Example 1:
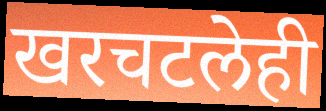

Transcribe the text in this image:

खरचटलेही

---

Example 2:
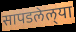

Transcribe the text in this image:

सापडलेल्या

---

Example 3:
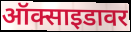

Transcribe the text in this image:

ऑक्साइडावर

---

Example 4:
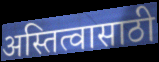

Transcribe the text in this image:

अस्तित्वासाठी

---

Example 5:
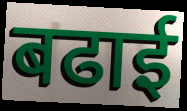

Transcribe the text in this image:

बढाई